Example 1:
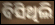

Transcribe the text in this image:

ବିସିଥିଲି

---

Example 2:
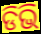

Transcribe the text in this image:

ଡିଭି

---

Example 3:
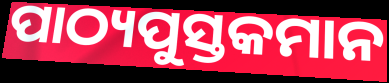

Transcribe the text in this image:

ପାଠ୍ୟପୁସ୍ତକମାନ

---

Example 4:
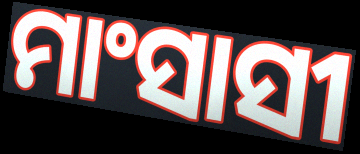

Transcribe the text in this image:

ମାଂସାସୀ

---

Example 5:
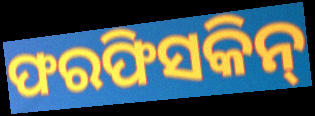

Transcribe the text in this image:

ଫରଫିସକିନ୍